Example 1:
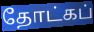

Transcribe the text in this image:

தோட்கப்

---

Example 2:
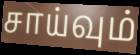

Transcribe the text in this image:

சாய்வும்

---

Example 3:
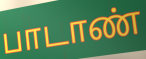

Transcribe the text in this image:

பாடாண்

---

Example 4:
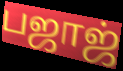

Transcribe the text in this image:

பஜாஜ்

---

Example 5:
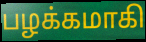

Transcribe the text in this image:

பழக்கமாகி